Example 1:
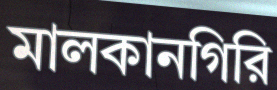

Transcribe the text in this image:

মালকানগিরি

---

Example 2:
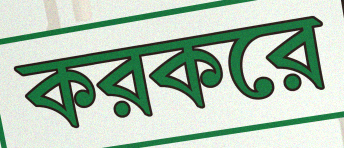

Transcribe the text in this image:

করকরে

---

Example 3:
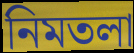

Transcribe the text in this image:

নিমতলা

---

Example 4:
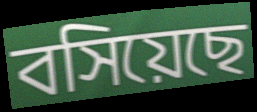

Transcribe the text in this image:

বসিয়েছে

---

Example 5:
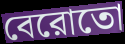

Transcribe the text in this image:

বেরোতো